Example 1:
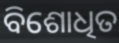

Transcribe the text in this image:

ବିଶୋଧିତ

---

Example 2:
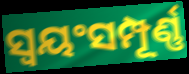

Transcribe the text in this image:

ସ୍ୱୟଂସମ୍ପୂର୍ଣ୍ଣ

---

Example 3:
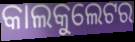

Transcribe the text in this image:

କାଲକୁଲେଟର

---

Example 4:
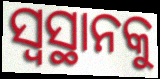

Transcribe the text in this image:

ସ୍ୱସ୍ଥାନକୁ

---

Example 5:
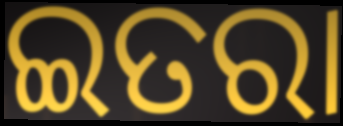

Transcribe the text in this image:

ଇତରା